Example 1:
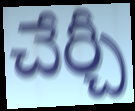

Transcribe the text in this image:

చేర్చీ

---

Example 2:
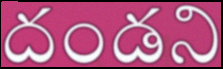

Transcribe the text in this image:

దండని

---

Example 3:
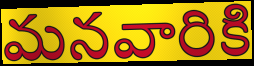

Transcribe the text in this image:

మనవారికి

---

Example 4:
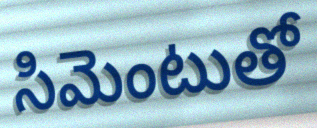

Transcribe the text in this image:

సిమెంటుతో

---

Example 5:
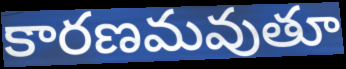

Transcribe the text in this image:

కారణమవుతూ